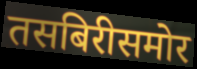
तसबिरीसमोर